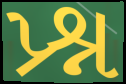
પ્ર્શ્ન